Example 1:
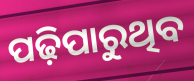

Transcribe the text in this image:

ପଢ଼ିପାରୁଥିବ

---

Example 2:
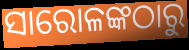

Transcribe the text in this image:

ସାରୋଳଙ୍କଠାରୁ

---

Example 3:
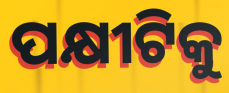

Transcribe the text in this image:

ପକ୍ଷୀଟିକୁ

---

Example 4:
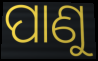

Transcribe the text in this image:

ପାଣୁ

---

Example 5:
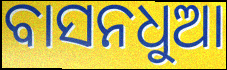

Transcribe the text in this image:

ବାସନଧୁଆ